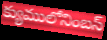
క్యుములోనింబస్